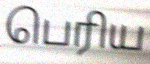
பெரிய